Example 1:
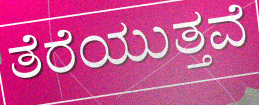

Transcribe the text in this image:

ತೆರೆಯುತ್ತವೆ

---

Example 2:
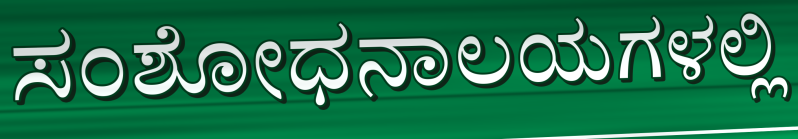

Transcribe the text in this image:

ಸಂಶೋಧನಾಲಯಗಳಲ್ಲಿ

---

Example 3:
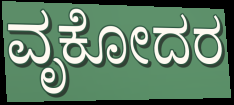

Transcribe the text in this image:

ವೃಕೋದರ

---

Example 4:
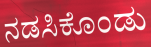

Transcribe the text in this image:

ನಡಸಿಕೊಂಡು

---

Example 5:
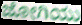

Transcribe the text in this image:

ಜೋಗಿಯು